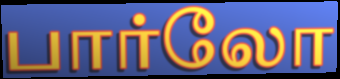
பார்லோ